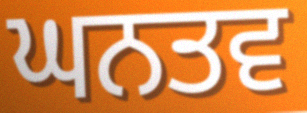
ਘਨਤਵ